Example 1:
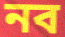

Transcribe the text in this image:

নব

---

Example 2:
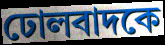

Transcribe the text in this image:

ঢোলবাদকে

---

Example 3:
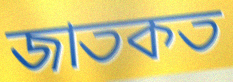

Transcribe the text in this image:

জাতকত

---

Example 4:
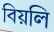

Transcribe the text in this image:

বিয়লি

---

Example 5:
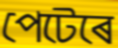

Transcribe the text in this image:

পেটেৰে